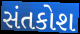
સંતકોશ